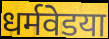
धर्मवेडया